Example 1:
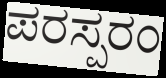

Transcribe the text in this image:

ಪರಸ್ಪರಂ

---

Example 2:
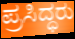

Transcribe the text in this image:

ಪ್ರಸಿದ್ಧರು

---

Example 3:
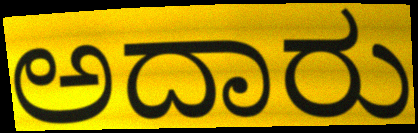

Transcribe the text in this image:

ಅದಾರು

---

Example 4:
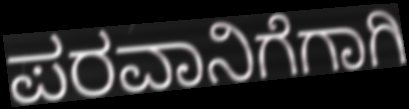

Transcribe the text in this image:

ಪರವಾನಿಗೆಗಾಗಿ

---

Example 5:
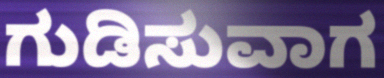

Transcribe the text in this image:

ಗುಡಿಸುವಾಗ